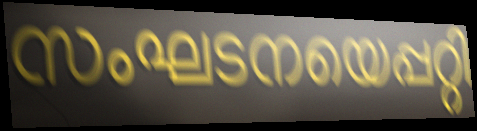
സംഘടനയെപ്പറ്റി